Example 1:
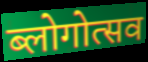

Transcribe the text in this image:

ब्लोगोत्सव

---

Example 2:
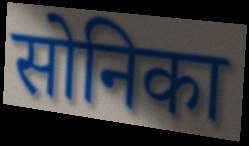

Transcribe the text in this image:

सोनिका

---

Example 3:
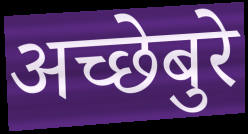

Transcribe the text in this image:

अच्छेबुरे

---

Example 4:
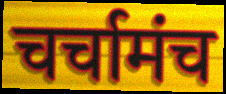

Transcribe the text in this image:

चर्चामंच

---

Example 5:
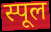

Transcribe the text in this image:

स्पूल